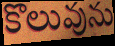
కొలువును